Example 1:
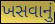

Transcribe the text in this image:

ખસવાનું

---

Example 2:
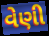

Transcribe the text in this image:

વેણી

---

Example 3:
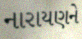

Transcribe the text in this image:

નારાયણને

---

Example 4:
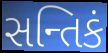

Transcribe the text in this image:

સન્તિકં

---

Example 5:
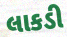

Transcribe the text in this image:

લાકડી